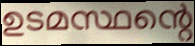
ഉടമസ്ഥന്റെ